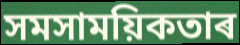
সমসাময়িকতাৰ